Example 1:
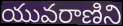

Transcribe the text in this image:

యువరాణిని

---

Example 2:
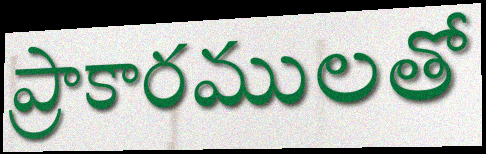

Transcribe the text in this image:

ప్రాకారములతో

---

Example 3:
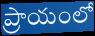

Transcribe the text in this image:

ప్రాయంలో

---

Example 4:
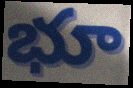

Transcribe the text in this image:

భూ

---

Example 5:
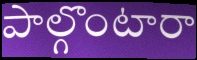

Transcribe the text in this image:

పాల్గొంటారా